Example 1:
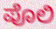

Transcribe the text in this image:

ಪೊಲಿ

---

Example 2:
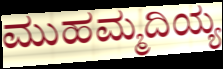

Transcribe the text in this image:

ಮುಹಮ್ಮದಿಯ್ಯ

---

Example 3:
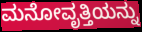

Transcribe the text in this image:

ಮನೋವೃತ್ತಿಯನ್ನು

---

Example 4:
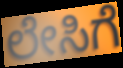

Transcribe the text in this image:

ಲೇಸಿಗೆ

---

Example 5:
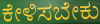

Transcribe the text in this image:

ಕೇಳಿಸಬೇಕು